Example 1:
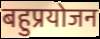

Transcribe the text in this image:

बहुप्रयोजन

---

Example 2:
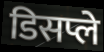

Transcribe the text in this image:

डिसप्ले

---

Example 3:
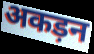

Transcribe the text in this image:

अकड़न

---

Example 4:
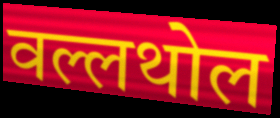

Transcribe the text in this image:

वल्लथोल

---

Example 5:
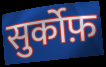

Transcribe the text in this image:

सुर्कोफ़